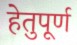
हेतुपूर्ण